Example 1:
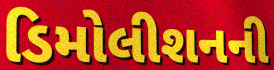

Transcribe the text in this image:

ડિમોલીશનની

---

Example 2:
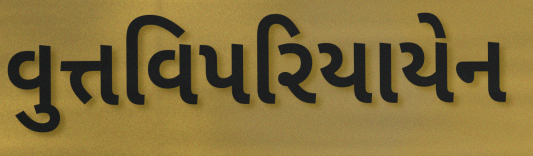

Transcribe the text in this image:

વુત્તવિપરિયાયેન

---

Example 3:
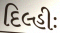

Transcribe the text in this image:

દિલ્હીઃ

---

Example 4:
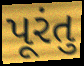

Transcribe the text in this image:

પૂરંતુ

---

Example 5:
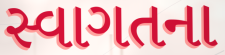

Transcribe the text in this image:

સ્વાગતના